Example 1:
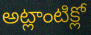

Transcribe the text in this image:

అట్లాంటిక్లో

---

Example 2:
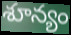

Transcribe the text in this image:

శూన్యం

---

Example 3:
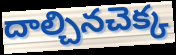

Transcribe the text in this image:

దాల్చినచెక్క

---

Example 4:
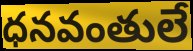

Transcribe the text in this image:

ధనవంతులే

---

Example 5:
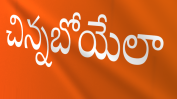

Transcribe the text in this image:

చిన్నబోయేలా